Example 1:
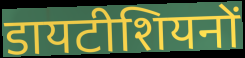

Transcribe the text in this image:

डायटीशियनों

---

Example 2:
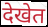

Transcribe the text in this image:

देखेत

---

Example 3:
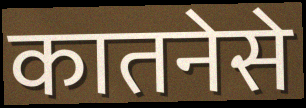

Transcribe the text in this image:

कातनेसे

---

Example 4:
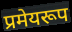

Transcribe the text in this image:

प्रमेयरूप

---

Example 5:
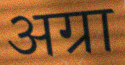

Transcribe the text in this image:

अग्रा